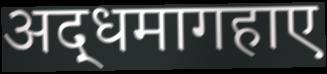
अद्धमागहाए